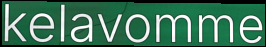
kelavomme